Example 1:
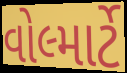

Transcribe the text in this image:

વોલ્માર્ટે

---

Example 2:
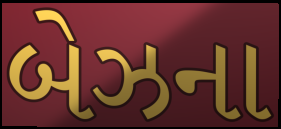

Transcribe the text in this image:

બેઝના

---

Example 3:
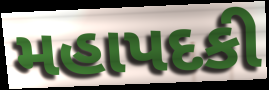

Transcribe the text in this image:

મહાપદકી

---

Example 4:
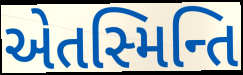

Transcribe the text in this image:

એતસ્મિન્તિ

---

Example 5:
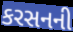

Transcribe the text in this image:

કરસનની